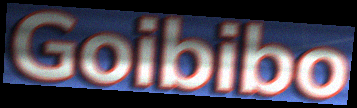
Goibibo